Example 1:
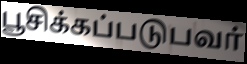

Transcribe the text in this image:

பூசிக்கப்படுபவர்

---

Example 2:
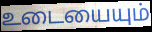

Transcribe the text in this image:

உடையையும்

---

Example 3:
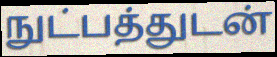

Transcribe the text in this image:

நுட்பத்துடன்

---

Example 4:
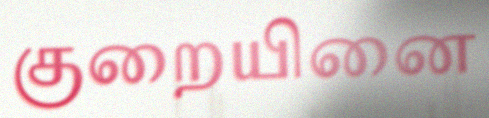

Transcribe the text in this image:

குறையினை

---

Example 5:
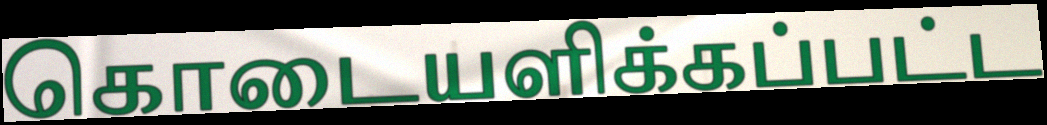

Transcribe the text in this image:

கொடையளிக்கப்பட்ட